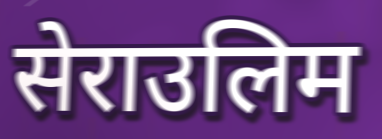
सेराउलिम